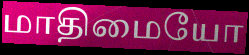
மாதிமையோ